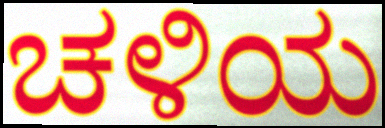
ಚಳಿಯ